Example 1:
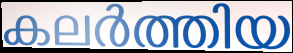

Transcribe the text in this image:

കലർത്തിയ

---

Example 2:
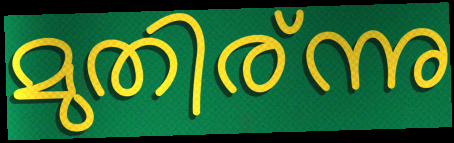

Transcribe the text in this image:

മുതിര്ന്നു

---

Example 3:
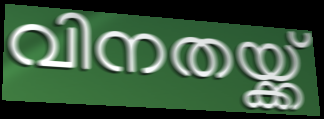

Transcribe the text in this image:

വിനതയ്ക്ക്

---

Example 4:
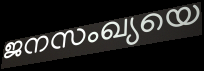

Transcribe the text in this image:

ജനസംഖ്യയെ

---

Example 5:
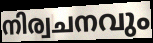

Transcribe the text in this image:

നിര്വചനവും